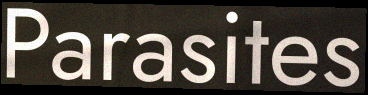
Parasites